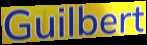
Guilbert